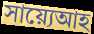
সায়্যেআহ